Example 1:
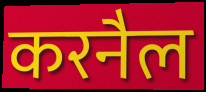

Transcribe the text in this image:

करनैल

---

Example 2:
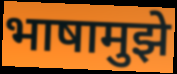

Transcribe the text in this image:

भाषामुझे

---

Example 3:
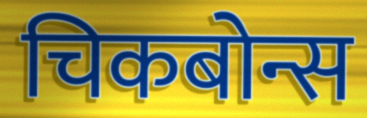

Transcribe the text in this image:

चिकबोन्स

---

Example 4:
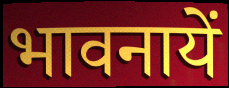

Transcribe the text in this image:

भावनायें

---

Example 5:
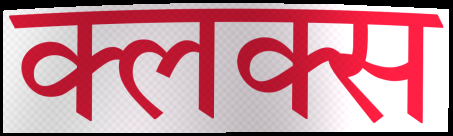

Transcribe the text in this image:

क्लक्स